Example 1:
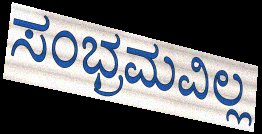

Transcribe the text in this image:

ಸಂಭ್ರಮವಿಲ್ಲ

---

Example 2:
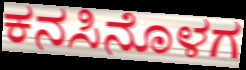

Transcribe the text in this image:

ಕನಸಿನೊಳಗ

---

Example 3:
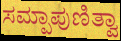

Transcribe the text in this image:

ಸಮ್ಪಾಪುಣಿತ್ವಾ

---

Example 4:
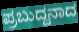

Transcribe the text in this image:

ಪ್ರಬುದ್ದನಾದ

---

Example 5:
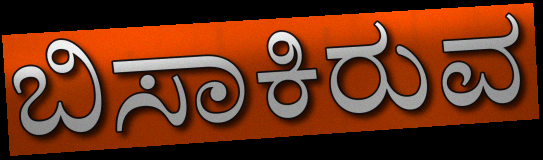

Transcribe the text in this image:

ಬಿಸಾಕಿರುವ